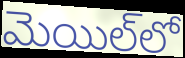
మెయిల్‌లో